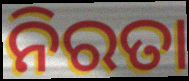
ନିରତା